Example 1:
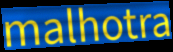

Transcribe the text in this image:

malhotra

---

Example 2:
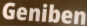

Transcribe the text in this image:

Geniben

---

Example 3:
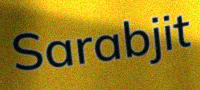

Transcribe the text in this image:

Sarabjit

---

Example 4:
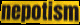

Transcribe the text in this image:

nepotism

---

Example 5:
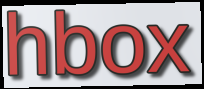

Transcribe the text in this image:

hbox